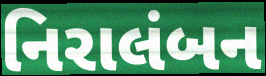
નિરાલંબન